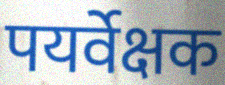
पयर्वेक्षक